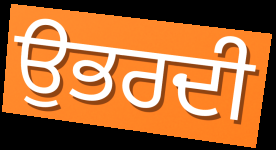
ਉਭਰਦੀ